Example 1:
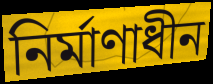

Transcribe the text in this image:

নির্মাণাধীন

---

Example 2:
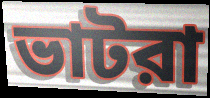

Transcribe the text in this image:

ভাটরা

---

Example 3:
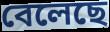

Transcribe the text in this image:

বেলেছে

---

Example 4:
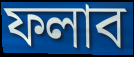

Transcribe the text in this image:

ফলাব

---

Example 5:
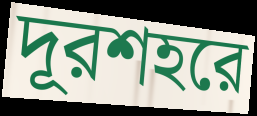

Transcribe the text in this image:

দূরশহরে